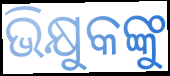
ଭିକ୍ଷୁକଙ୍କୁ